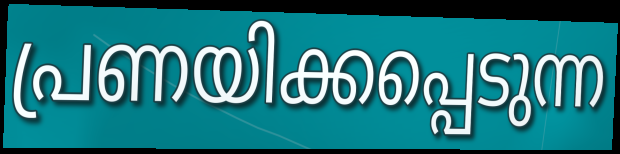
പ്രണയിക്കപ്പെടുന്ന